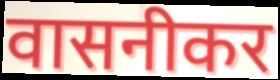
वासनीकर